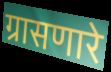
ग्रासणारे